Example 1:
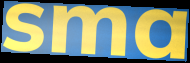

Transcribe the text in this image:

sma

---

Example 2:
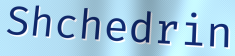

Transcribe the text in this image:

Shchedrin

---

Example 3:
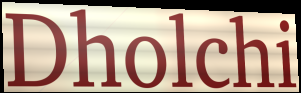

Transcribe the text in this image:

Dholchi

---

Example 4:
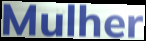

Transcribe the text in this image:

Mulher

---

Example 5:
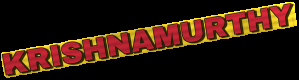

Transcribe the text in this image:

KRISHNAMURTHY